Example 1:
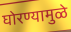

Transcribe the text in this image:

घोरण्यामुळे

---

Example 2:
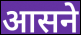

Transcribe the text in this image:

आसने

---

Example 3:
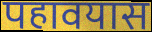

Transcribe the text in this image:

पहावयास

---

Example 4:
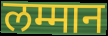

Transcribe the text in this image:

लम्मान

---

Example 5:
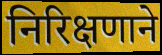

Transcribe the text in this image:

निरिक्षणाने